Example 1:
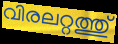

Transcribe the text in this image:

വിരലറ്റത്തു്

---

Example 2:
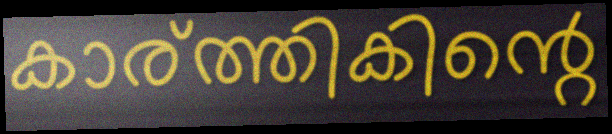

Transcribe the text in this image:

കാര്ത്തികിന്റെ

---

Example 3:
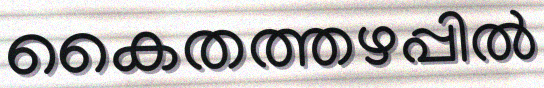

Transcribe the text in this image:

കൈതത്തഴപ്പിൽ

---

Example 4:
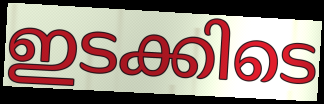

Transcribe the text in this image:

ഇടക്കിടെ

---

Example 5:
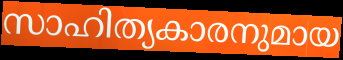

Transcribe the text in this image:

സാഹിത്യകാരനുമായ